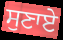
ਸੁਣਾਏ